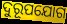
ଦୁରୂପଯୋଗ